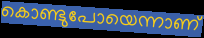
കൊണ്ടുപോയെന്നാണ്